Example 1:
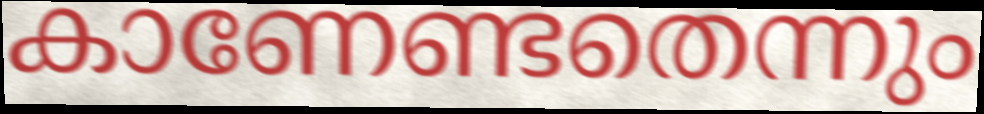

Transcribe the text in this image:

കാണേണ്ടതെന്നും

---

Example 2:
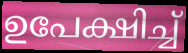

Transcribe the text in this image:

ഉപേക്ഷിച്ച്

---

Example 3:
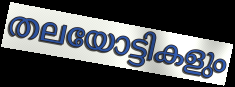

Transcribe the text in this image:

തലയോട്ടികളും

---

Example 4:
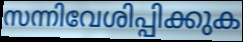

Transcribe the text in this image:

സന്നിവേശിപ്പിക്കുക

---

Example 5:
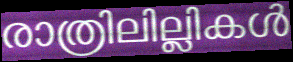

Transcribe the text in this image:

രാത്രിലില്ലികൾ